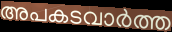
അപകടവാർത്ത